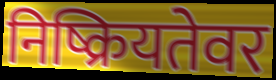
निष्क्रियतेवर